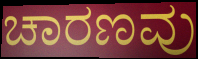
ಚಾರಣವು